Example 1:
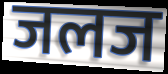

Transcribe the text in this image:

जलज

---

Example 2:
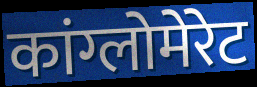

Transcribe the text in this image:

कांग्लोमेरेट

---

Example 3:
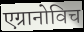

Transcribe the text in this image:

एग्रानोविच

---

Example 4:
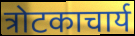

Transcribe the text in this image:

त्रोटकाचार्य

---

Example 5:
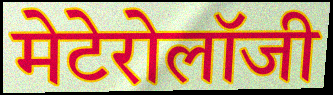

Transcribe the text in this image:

मेटेरोलॉजी